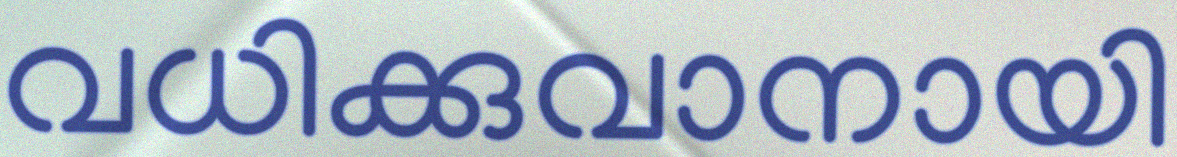
വധിക്കുവാനായി